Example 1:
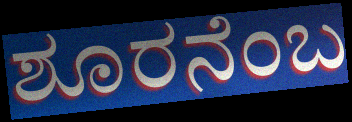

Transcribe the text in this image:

ಶೂರನೆಂಬ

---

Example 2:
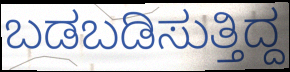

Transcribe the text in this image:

ಬಡಬಡಿಸುತ್ತಿದ್ದ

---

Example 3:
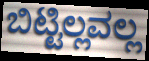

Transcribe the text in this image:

ಬಿಟ್ಟಿಲ್ಲವಲ್ಲ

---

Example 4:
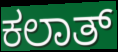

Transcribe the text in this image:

ಕಲಾತ್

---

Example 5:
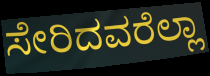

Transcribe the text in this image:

ಸೇರಿದವರೆಲ್ಲಾ